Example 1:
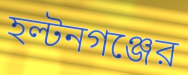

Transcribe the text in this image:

হল্টনগঞ্জের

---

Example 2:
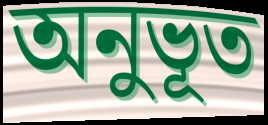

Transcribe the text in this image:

অনুভূত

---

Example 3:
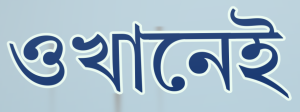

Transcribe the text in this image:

ওখানেই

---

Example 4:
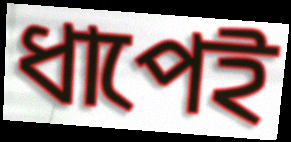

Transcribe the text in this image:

ধাপেই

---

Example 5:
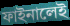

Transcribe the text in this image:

ফাইনালেই